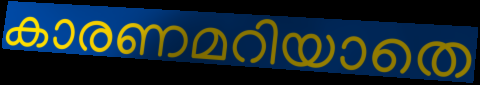
കാരണമറിയാതെ